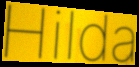
Hilda